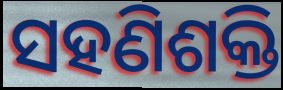
ସହଣିଶକ୍ତି